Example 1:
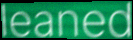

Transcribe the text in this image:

leaned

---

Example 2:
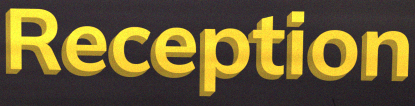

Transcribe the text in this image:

Reception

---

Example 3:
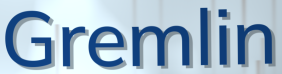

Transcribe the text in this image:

Gremlin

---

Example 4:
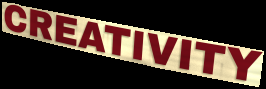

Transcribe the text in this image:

CREATIVITY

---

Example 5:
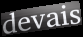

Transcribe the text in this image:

devais